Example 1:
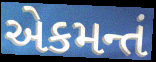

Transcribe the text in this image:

એકમન્તં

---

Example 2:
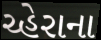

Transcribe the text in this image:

ચ્હેરાના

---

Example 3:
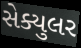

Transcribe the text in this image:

સેક્યુલર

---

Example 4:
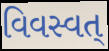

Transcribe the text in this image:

વિવસ્વત્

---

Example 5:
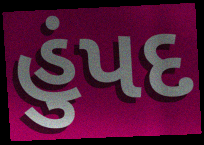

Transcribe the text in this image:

હુંપદ